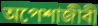
অপেশাজীবী